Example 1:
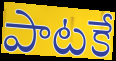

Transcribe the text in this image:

పాటకే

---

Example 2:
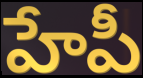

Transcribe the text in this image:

హేపీ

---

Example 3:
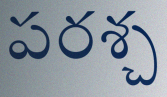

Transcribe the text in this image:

పరశ్చ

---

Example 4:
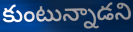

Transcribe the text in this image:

కుంటున్నాడని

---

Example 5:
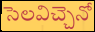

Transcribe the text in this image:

సెలవిచ్చెనో